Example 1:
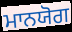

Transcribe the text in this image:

ਮਾਨਯੋਗ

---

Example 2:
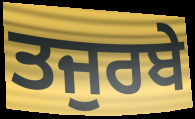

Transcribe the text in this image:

ਤਜੁਰਬੇ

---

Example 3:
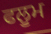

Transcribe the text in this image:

ਫਲੂਮ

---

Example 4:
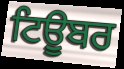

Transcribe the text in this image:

ਟਿਊੁਬਰ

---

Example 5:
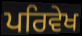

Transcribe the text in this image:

ਪਰਿਵੇਖ